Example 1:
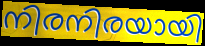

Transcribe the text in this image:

നിരനിരയായി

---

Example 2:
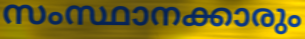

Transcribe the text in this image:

സംസ്ഥാനക്കാരും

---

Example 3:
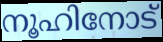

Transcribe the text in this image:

നൂഹിനോട്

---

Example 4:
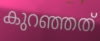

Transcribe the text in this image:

കുറഞ്ഞത്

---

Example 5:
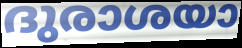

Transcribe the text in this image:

ദുരാശയാ